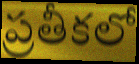
ప్రతీకలో